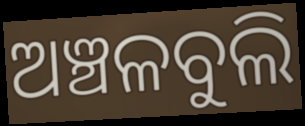
ଅଞ୍ଚଳବୁଲି